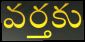
వర్తకు